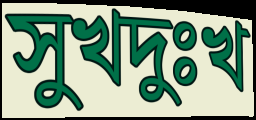
সুখদুঃখ